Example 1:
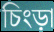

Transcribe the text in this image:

চিংড়া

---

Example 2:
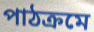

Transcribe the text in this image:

পাঠক্রমে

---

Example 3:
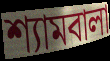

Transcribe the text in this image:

শ্যামবালা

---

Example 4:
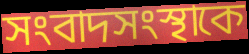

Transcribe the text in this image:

সংবাদসংস্থাকে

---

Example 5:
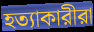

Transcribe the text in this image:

হত্যাকারীরা